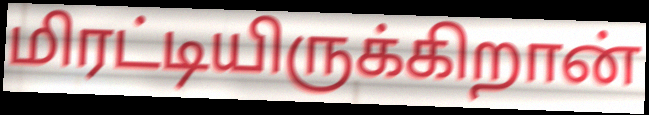
மிரட்டியிருக்கிறான்